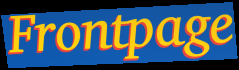
Frontpage